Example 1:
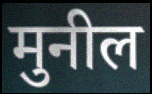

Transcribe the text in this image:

मुनील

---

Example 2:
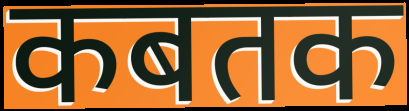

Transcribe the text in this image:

कबतक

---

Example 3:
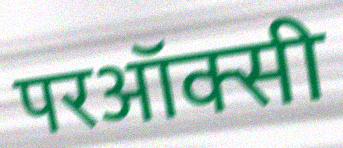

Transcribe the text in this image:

परऑक्सी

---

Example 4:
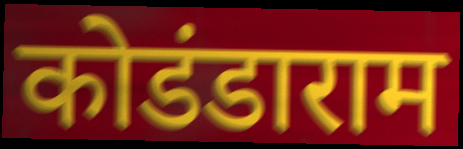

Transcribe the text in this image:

कोडंडाराम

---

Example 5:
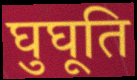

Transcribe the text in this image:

घुघूति